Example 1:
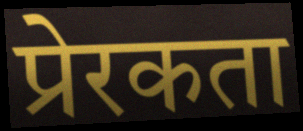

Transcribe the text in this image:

प्रेरकता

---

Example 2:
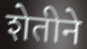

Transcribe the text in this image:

शेतीने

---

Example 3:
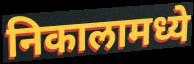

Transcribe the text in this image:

निकालामध्ये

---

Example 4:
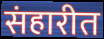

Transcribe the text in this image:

संहारीत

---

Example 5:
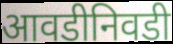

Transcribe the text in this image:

आवडीनिवडी